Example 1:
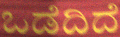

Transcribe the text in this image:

ಒಡೆದಿದೆ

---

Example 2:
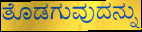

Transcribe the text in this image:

ತೊಡಗುವುದನ್ನು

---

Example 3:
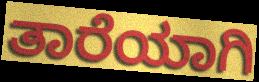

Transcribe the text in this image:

ತಾರೆಯಾಗಿ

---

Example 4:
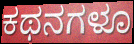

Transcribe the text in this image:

ಕಥನಗಳೂ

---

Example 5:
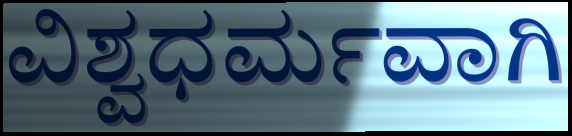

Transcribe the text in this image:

ವಿಶ್ವಧರ್ಮವಾಗಿ